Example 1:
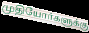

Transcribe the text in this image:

முதியோர்களுக்கு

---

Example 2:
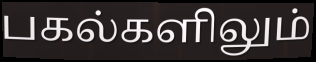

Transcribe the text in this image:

பகல்களிலும்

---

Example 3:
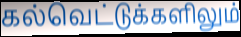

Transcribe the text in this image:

கல்வெட்டுக்களிலும்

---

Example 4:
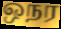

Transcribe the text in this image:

ஒநர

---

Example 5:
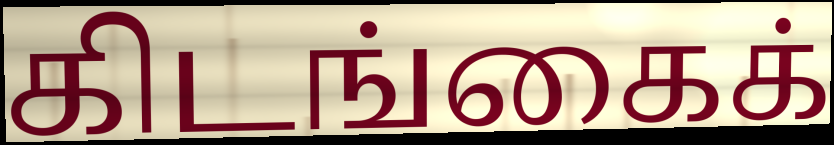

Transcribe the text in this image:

கிடங்கைக்